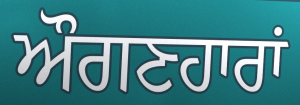
ਔਗਣਹਾਰਾਂ